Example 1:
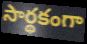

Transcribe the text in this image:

సార్థకంగా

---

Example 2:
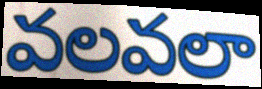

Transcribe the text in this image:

వలవలా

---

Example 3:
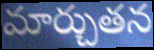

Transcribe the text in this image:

మార్చుతన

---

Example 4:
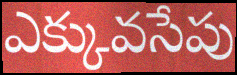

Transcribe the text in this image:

ఎక్కువసేపు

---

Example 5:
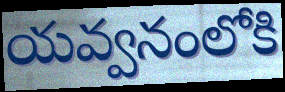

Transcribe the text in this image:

యవ్వనంలోకి